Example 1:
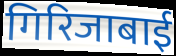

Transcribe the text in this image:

गिरिजाबाई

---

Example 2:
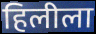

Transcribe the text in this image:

हिलीला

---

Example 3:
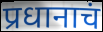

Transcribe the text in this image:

प्रधानाचं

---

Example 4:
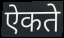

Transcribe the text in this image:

ऐकते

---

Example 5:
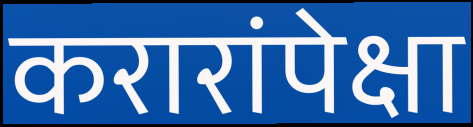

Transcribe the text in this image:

करारांपेक्षा